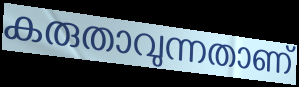
കരുതാവുന്നതാണ്